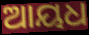
ଆୟଧ